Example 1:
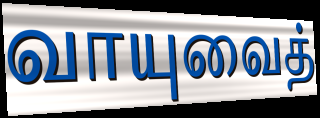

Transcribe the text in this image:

வாயுவைத்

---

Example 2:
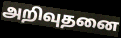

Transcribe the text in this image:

அறிவுதனை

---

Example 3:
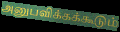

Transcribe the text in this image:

அனுபவிக்கக்கூடும்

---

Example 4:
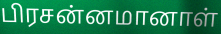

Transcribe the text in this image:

பிரசன்னமானாள்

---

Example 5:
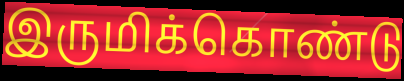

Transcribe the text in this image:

இருமிக்கொண்டு